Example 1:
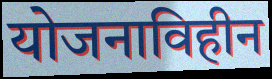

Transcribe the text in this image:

योजनाविहीन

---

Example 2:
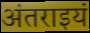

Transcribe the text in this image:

अंतराइयं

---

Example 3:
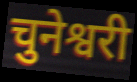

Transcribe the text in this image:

चुनेश्वरी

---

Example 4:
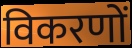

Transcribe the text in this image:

विकरणों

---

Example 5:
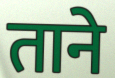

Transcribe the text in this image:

ताने